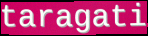
taragati